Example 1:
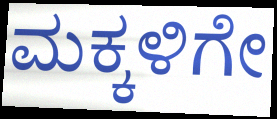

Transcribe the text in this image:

ಮಕ್ಕಳಿಗೇ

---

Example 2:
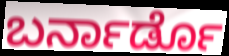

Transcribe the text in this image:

ಬರ್ನಾರ್ಡೊ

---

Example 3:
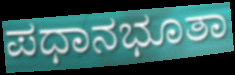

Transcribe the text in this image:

ಪಧಾನಭೂತಾ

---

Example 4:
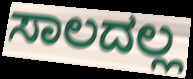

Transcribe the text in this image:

ಸಾಲದಲ್ಲ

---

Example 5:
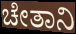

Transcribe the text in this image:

ಚೇತಾನಿ